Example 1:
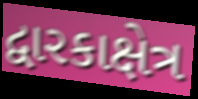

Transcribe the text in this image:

દ્વારકાક્ષેત્ર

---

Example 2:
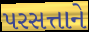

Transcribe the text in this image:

પરસત્તાને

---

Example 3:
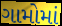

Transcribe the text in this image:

ગામોમાં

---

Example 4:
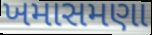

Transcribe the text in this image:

ખમાસમણા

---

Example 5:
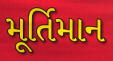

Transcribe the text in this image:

મૂર્તિમાન